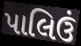
પાલિઉં